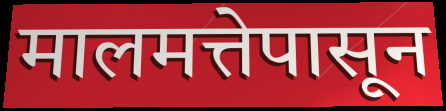
मालमत्तेपासून